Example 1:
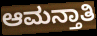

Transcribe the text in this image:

ಆಮನ್ತಾತಿ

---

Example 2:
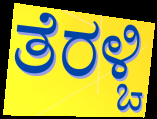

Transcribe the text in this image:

ತೆರಳ್ಚಿ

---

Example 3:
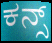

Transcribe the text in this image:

ಕನ್ಸ್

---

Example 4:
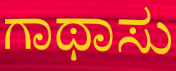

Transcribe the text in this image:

ಗಾಥಾಸು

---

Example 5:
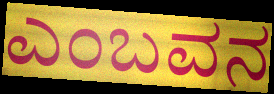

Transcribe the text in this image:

ಎಂಬವನ